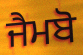
ਜੈਮਬੋ